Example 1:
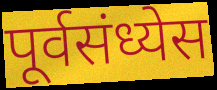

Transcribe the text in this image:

पूर्वसंध्येस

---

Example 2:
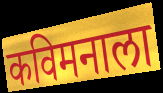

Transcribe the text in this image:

कविमनाला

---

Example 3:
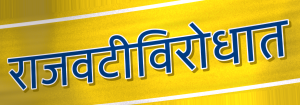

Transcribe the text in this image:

राजवटीविरोधात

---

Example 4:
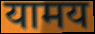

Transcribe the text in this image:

यामय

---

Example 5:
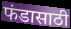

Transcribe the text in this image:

फंडासाठी